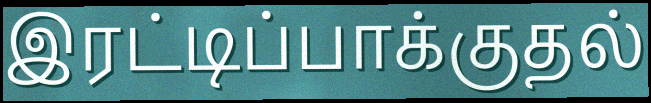
இரட்டிப்பாக்குதல்